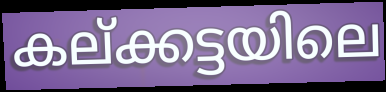
കല്ക്കട്ടയിലെ